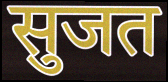
सुजत